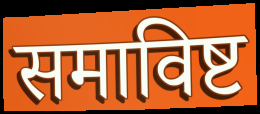
समाविष्ट